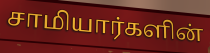
சாமியார்களின்